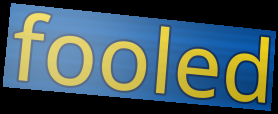
fooled